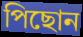
পিছোন